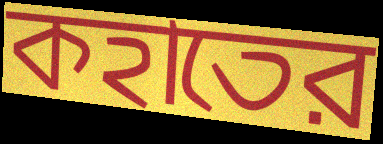
কহাতের